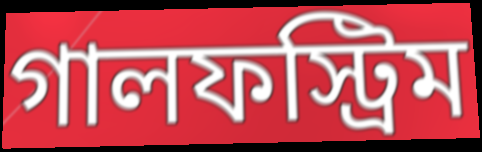
গালফস্ট্রিম